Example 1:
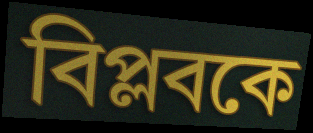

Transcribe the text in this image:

বিপ্লবকে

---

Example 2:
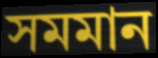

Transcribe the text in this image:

সমমান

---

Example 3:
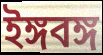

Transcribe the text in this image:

ইঙ্গবঙ্গ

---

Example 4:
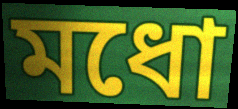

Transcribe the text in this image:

মধো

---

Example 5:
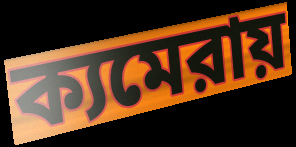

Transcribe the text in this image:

ক্যমেরায়